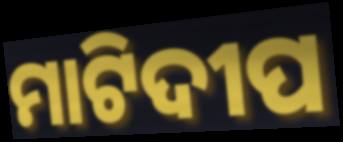
ମାଟିଦୀପ